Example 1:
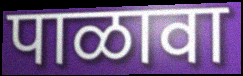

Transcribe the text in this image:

पाळावा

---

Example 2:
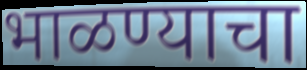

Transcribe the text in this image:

भाळण्याचा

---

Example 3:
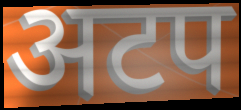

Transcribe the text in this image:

अटप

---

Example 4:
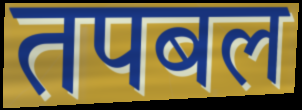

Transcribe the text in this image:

तपबल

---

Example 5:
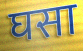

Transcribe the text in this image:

घसा